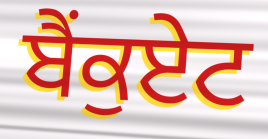
ਬੈਂਕੁਏਟ